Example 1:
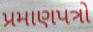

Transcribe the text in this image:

પ્રમાણપત્રો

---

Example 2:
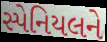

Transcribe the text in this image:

સ્પેનિયલને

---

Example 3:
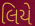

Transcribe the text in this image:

લિયે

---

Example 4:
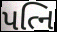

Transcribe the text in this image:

પત્નિ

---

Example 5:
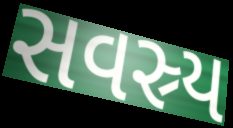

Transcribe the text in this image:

સવસ્ર્ય